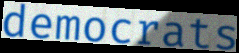
democrats